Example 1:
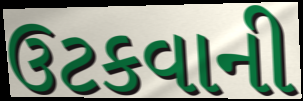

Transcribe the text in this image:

ઉટકવાની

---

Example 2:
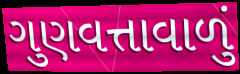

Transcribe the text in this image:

ગુણવત્તાવાળું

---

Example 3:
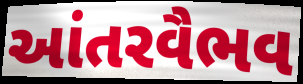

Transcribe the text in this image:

આંતરવૈભવ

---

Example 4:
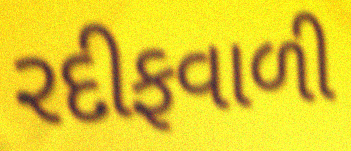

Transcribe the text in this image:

રદીફવાળી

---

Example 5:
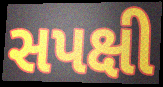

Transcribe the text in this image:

સપક્ષી